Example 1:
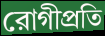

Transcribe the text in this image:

রোগীপ্রতি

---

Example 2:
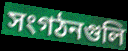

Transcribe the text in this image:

সংগঠনগুলি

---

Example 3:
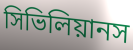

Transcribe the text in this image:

সিভিলিয়ানস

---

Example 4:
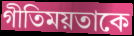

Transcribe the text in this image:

গীতিময়তাকে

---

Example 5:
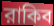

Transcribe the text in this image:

রাকিব